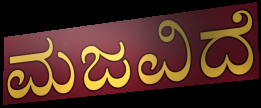
ಮಜವಿದೆ